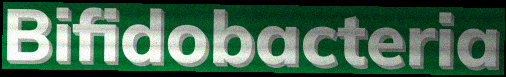
Bifidobacteria